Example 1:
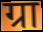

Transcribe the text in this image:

ग्रा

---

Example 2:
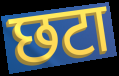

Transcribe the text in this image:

छटा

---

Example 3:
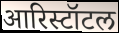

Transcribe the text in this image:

आरिस्टॉटल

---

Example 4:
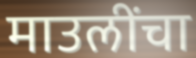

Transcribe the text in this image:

माउलींचा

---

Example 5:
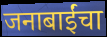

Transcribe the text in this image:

जनाबाईंचा